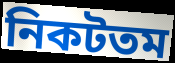
নিকটতম